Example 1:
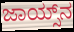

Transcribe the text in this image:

ಜಾಯ್ಸ್‌ನ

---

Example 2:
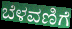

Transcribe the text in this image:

ಬೆಳವಣಿಗೆ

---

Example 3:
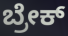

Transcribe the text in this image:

ಬ್ರೇಕ್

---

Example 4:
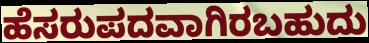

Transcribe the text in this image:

ಹೆಸರುಪದವಾಗಿರಬಹುದು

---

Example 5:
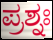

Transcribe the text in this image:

ಪ್ರಶ್ನಃ